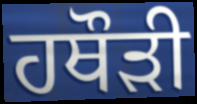
ਹਥੌੜੀ